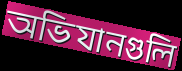
অভিযানগুলি